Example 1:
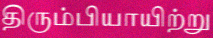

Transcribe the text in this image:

திரும்பியாயிற்று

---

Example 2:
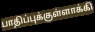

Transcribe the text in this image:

பாதிப்புக்குள்ளாக்கி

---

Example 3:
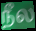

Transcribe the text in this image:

நீல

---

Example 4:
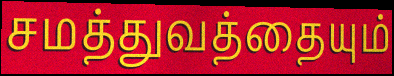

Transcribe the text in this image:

சமத்துவத்தையும்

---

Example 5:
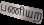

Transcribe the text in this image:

பணியற